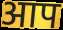
आप